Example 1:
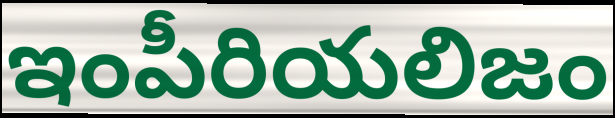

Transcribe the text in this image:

ఇంపీరియలిజం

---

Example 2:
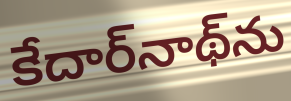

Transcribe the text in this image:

కేదార్‌నాథ్‌ను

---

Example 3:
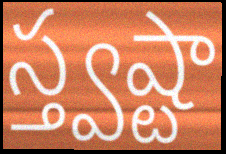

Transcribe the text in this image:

స్త్వష్టా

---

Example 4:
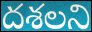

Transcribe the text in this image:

దశలని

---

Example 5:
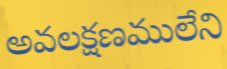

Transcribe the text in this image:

అవలక్షణములేని